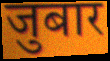
जुबार